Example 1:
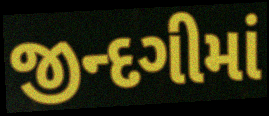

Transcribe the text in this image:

જીન્દગીમાં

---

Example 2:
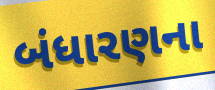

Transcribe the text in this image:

બંધારણના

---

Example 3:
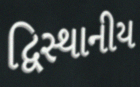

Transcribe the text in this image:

દ્વિસ્થાનીય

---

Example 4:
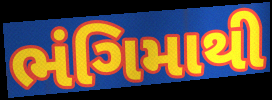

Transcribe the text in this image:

ભંગિમાથી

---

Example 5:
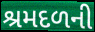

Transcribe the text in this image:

શ્રમદળની